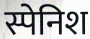
स्पेनिश